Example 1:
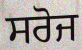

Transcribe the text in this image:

ਸਰੋਜ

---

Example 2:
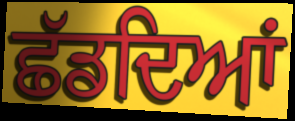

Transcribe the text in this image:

ਛੱਡਦਿਆਂ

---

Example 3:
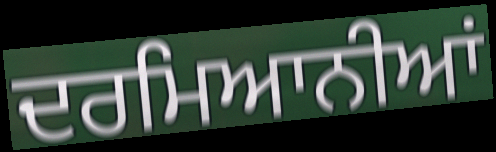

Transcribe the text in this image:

ਦਰਮਿਆਨੀਆਂ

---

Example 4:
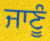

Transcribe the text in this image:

ਜਾਣੂੰ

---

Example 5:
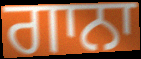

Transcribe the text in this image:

ਗਾਨਾ